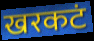
खरकटं